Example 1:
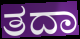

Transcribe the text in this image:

ತದಾ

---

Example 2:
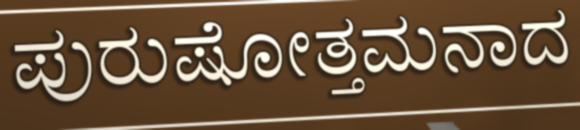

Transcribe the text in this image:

ಪುರುಷೋತ್ತಮನಾದ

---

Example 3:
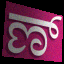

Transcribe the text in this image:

ಣ್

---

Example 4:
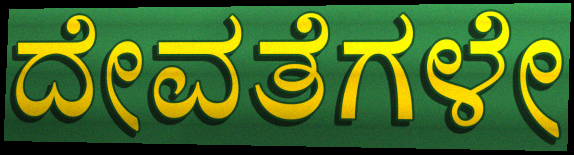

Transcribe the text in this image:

ದೇವತೆಗಳೇ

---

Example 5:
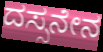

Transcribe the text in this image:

ದಸ್ಸನೇನ